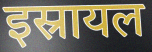
इस्रायल